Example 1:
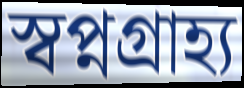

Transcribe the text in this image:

স্বপ্নগ্রাহ্য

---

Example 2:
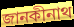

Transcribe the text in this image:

জানকীনাথ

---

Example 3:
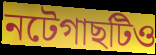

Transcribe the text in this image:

নটেগাছটিও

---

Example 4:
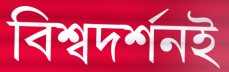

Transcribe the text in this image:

বিশ্বদর্শনই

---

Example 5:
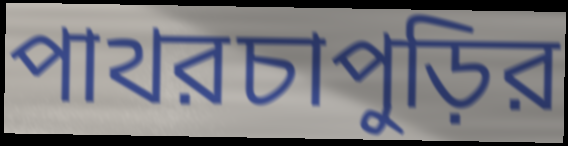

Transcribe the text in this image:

পাথরচাপুড়ির